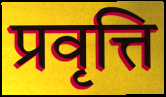
प्रवृत्ति